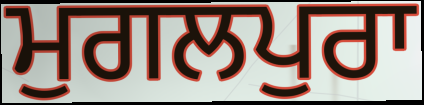
ਮੁਗਲਪੁਰਾ